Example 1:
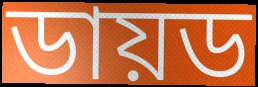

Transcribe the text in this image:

ডায়ড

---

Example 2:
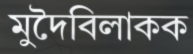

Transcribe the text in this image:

মুদৈবিলাকক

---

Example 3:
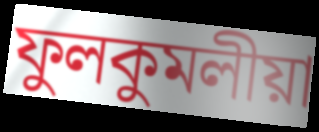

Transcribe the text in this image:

ফুলকুমলীয়া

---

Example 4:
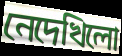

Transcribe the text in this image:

নেদেখিলো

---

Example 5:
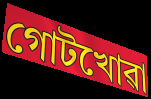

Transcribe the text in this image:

গোটখোৱা